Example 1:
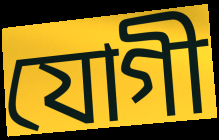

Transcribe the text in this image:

যোগী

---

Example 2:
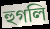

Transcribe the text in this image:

হুগলি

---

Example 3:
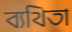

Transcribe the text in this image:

ব্যথিতা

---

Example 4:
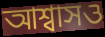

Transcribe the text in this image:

আশ্বাসও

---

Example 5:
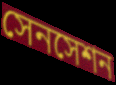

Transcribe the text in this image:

সেনসেশন